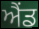
ਐੰਡ